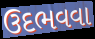
ઉદભવવા